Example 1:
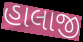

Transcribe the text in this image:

હાલાજી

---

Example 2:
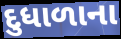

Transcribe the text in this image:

દુધાળાના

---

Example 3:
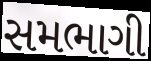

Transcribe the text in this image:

સમભાગી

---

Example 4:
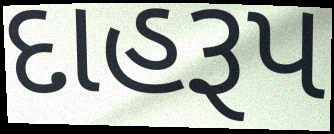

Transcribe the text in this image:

દાહરૂપ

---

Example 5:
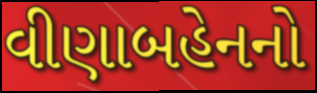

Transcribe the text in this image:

વીણાબહેનનો